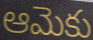
ఆమెకు